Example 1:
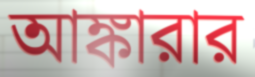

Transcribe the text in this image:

আঙ্কারার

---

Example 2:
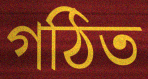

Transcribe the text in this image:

গঠিত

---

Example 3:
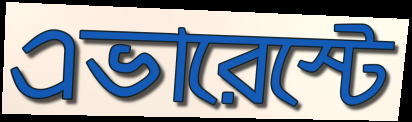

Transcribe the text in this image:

এভারেস্টে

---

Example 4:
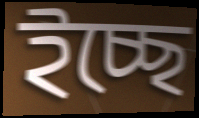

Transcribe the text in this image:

ইচ্ছে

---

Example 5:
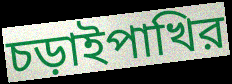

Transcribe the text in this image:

চড়াইপাখির